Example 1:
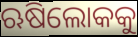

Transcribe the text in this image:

ଋଷିଲୋକକୁ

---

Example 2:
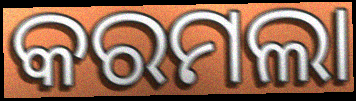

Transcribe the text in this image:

କରମଲା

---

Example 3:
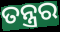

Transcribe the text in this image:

ତନ୍ତ୍ରର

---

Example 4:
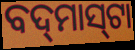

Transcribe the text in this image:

ବଦ୍‌ମାସ୍‌ଟା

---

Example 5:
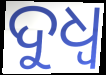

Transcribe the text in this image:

ଦୁଧ୍ଵ